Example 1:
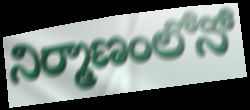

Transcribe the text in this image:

నిర్మాణంలోనో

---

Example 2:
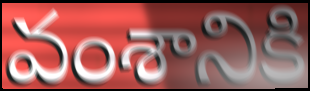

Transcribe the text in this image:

వంశానికి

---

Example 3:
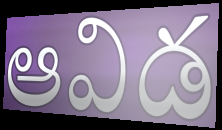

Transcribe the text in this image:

ఆవిడ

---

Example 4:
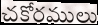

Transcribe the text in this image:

చకోరములు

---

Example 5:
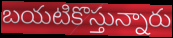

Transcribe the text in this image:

బయటికొస్తున్నారు